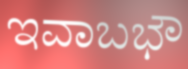
ಇವಾಬಭೌ